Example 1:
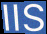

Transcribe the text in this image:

IIS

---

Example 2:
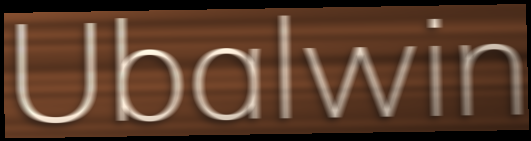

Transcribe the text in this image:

Ubalwin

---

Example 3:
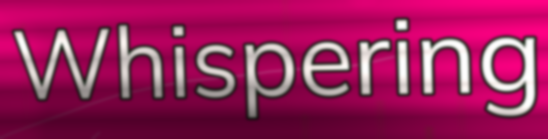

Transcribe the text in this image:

Whispering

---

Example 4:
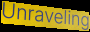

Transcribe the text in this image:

Unraveling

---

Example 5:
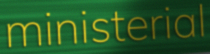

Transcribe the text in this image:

ministerial